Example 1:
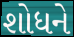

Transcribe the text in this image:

શોધને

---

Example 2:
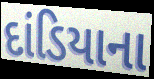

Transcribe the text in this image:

દાંડિયાના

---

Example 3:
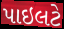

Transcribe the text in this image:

પાઇલટે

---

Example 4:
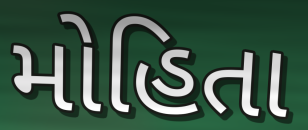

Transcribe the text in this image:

મોહિતા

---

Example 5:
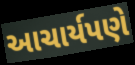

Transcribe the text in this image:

આચાર્યપણે